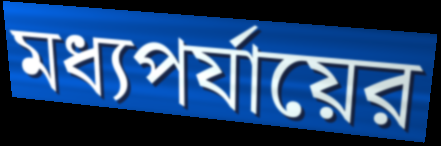
মধ্যপর্যায়ের